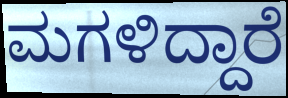
ಮಗಳಿದ್ದಾರೆ